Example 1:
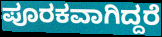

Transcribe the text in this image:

ಪೂರಕವಾಗಿದ್ದರೆ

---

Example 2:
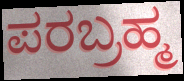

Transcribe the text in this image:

ಪರಬ್ರಹ್ಮ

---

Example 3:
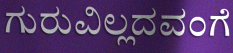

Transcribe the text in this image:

ಗುರುವಿಲ್ಲದವಂಗೆ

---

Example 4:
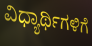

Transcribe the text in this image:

ವಿಧ್ಯಾರ್ಥಿಗಳಿಗೆ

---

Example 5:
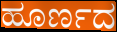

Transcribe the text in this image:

ಹೂರ್ಣದ